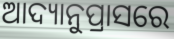
ଆଦ୍ୟାନୁପ୍ରାସରେ